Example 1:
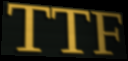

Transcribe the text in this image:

TTF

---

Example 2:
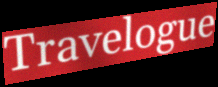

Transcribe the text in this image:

Travelogue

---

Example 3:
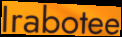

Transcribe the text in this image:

Irabotee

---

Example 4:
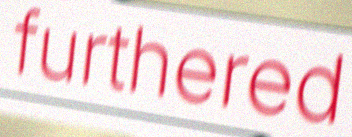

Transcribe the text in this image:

furthered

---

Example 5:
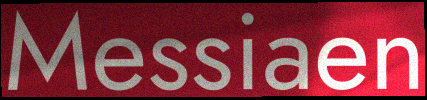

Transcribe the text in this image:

Messiaen